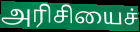
அரிசியைச்